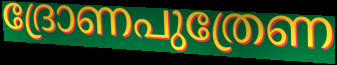
ദ്രോണപുത്രേണ